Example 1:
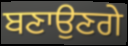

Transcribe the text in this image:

ਬਣਾਉਣਗੇ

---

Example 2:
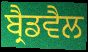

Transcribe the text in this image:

ਬ੍ਰੈਡਵੈਲ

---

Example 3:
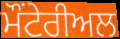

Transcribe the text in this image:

ਮੌਂਟੇਰੀਅਲ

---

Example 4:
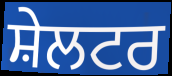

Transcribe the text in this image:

ਸ਼ੇਲਟਰ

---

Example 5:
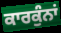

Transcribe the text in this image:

ਕਾਰਕੁੰਨਾਂ